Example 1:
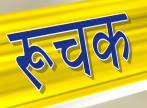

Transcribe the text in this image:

रूचक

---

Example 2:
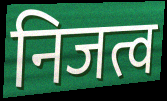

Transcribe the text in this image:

निजत्व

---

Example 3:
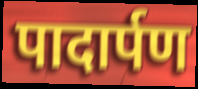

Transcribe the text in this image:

पादार्पण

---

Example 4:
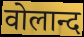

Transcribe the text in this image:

वोलान्द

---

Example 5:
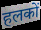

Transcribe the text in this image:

हलकों